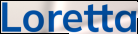
Loretta